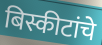
बिस्कीटांचे